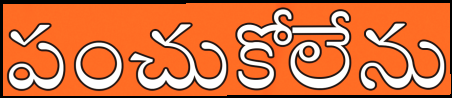
పంచుకోలేను